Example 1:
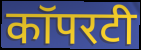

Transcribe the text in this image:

कॉपरटी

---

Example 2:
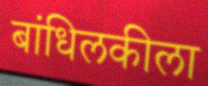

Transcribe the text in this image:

बांधिलकीला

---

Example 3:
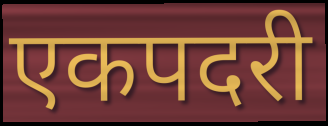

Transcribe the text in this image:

एकपदरी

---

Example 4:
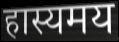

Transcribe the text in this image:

हास्यमय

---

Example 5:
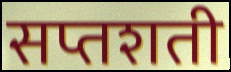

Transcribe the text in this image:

सप्तशती